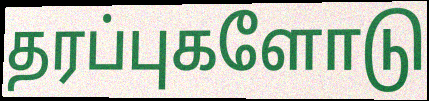
தரப்புகளோடு